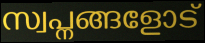
സ്വപ്നങ്ങളോട്